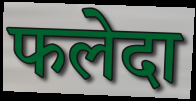
फलेदा